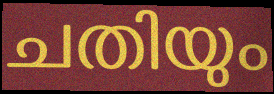
ചതിയും